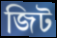
জিট